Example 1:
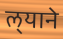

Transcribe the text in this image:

ल्याने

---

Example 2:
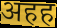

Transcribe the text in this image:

अहह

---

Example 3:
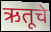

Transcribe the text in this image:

ऋतूचे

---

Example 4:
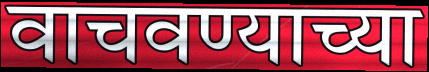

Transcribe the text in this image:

वाचवण्याच्या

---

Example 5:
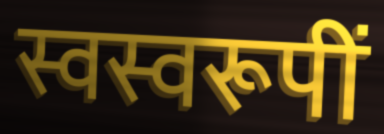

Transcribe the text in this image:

स्वस्वरूपीं